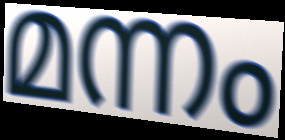
മന്നം